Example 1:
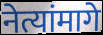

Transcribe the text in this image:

नेत्यांमागे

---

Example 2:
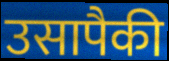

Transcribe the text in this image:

उसापैकी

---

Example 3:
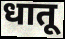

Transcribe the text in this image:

धातू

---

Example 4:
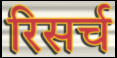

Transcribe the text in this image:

रिसर्च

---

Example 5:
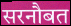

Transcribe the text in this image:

सरनौबत